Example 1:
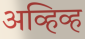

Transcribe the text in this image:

अव्हिव्ह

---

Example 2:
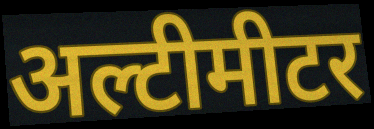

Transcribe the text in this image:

अल्टीमीटर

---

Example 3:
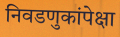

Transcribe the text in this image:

निवडणुकांपेक्षा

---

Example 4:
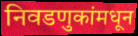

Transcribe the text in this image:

निवडणुकांमधून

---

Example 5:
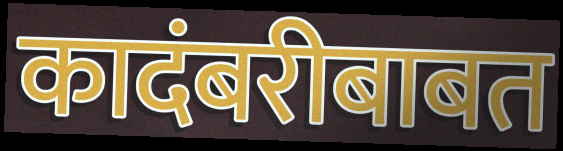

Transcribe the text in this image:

कादंबरीबाबत